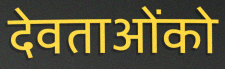
देवताओंको